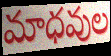
మాధవుల